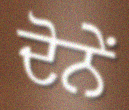
ਦੋਨੇਂ